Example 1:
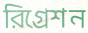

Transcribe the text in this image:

রিগ্রেশন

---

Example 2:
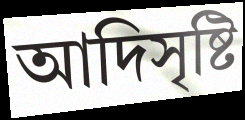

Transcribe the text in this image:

আদিসৃষ্টি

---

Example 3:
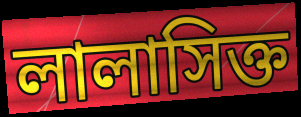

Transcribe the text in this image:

লালাসিক্ত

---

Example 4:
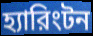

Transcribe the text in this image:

হ্যারিংটন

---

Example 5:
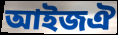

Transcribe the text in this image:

আইজঐ